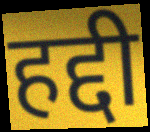
हद्दी